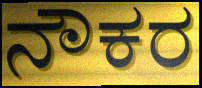
ನೌಕರ